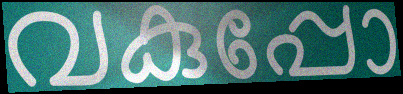
വകുപ്പോ